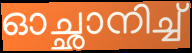
ഓച്ഛാനിച്ച്